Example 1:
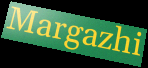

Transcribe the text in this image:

Margazhi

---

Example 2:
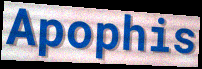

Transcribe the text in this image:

Apophis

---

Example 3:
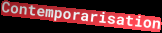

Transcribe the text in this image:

Contemporarisation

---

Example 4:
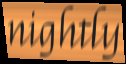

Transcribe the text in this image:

nightly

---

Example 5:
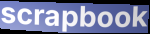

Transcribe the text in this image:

scrapbook